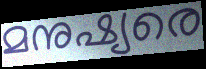
മനുഷ്യരെ